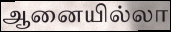
ஆனையில்லா